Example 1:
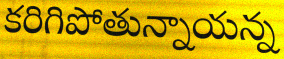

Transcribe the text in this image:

కరిగిపోతున్నాయన్న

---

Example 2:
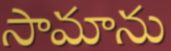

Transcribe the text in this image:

సామాను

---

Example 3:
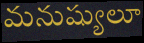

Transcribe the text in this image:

మనుష్యులూ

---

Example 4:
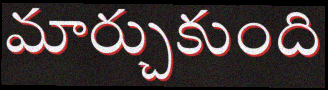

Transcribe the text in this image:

మార్చుకుంది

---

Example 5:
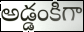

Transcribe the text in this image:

అడ్డంకిగా